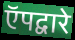
ऍपद्वारे